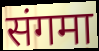
संगमा